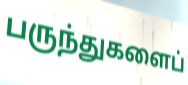
பருந்துகளைப்